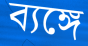
ব্যঙ্গে